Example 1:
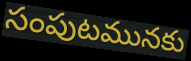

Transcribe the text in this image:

సంపుటమునకు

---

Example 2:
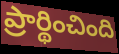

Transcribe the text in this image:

ప్రార్థించింది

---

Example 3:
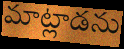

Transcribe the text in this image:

మాట్లాడను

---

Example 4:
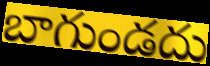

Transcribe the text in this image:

బాగుండదు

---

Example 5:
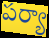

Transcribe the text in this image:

పర్యా